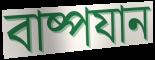
বাষ্পযান